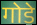
गोडे